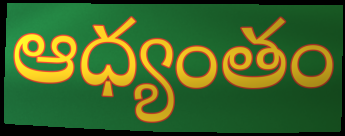
ఆధ్యంతం